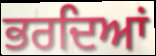
ਭਰਦਿਆਂ